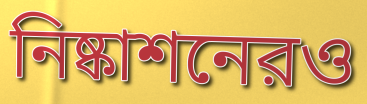
নিষ্কাশনেরও